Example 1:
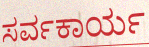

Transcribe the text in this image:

ಸರ್ವಕಾರ್ಯ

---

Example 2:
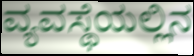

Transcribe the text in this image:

ವ್ಯವಸ್ಥೆಯಲ್ಲಿನ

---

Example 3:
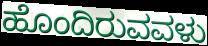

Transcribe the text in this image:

ಹೊಂದಿರುವವಳು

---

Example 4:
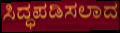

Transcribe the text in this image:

ಸಿದ್ಧಪಡಿಸಲಾದ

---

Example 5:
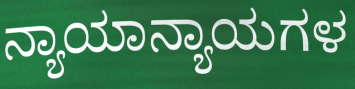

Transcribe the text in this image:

ನ್ಯಾಯಾನ್ಯಾಯಗಳ